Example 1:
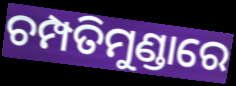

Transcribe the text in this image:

ଚମ୍ପତିମୁଣ୍ଡାରେ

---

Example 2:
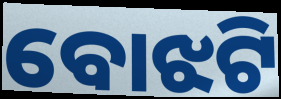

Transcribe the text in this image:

ବୋଝଟି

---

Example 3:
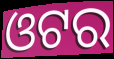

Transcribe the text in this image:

ଓଟର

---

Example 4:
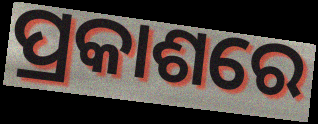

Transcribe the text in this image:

ପ୍ରକାଶରେ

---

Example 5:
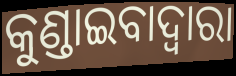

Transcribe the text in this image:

କୁଣ୍ଡାଇବାଦ୍ୱାରା